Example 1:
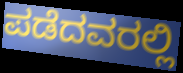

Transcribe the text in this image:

ಪಡೆದವರಲ್ಲಿ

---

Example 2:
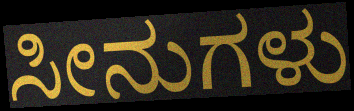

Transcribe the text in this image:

ಸೀನುಗಳು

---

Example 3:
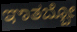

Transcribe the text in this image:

ಞಾತಬ್ಬೋ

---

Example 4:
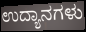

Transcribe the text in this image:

ಉದ್ಯಾನಗಳು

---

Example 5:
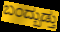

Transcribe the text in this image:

ಬಂದ್ಬುಡ್ತು